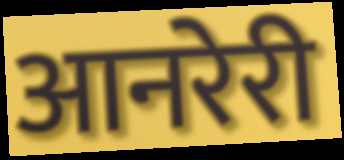
आनरेरी